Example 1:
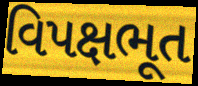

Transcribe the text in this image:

વિપક્ષભૂત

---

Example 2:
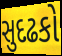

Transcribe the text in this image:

સુદઢકો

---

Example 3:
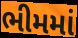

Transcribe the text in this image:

ભીમમાં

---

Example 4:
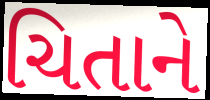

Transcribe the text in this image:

ચિતાને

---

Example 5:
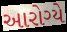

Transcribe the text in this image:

આરોગ્યે